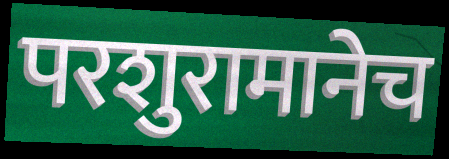
परशुरामानेच